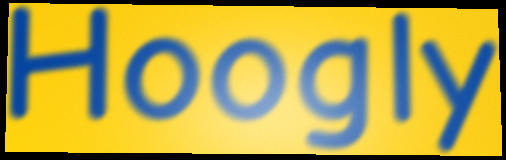
Hoogly